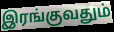
இரங்குவதும்